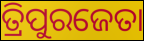
ତ୍ରିପୁରଜେତା